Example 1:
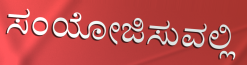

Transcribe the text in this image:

ಸಂಯೋಜಿಸುವಲ್ಲಿ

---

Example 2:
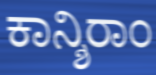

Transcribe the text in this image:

ಕಾನ್ಶಿರಾಂ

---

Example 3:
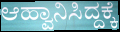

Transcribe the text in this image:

ಆಹ್ವಾನಿಸಿದ್ದಕ್ಕೆ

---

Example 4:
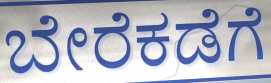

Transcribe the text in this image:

ಬೇರೆಕಡೆಗೆ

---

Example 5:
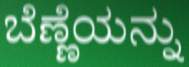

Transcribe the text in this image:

ಬೆಣ್ಣೆಯನ್ನು